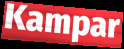
Kampar